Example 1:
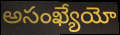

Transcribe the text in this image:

అసంఖ్యేయో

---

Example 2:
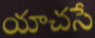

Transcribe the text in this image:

యాచసే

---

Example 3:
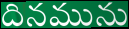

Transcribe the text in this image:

దినమును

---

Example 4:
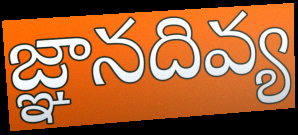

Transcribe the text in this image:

జ్ఞానదివ్య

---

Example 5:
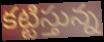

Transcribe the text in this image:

కట్టిస్తున్న